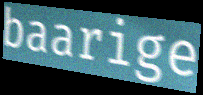
baarige